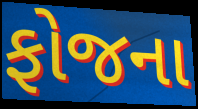
ફોજના